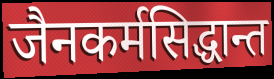
जैनकर्मसिद्धान्त